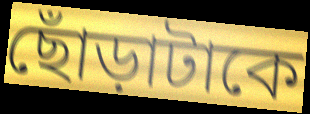
ছোঁড়াটাকে